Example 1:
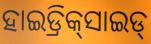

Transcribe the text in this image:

ହାଇଡ୍ରିକ୍‌ସାଇଡ୍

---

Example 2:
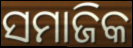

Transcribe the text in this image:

ସମାଜିକ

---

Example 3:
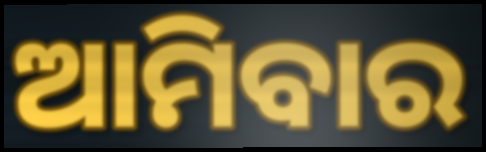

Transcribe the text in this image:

ଆମିବାର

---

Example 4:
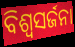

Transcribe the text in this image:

ବିଶ୍ଵସର୍ଜନା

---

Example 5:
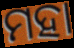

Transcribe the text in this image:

ମହା